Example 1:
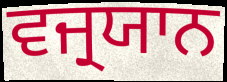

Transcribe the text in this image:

ਵਜ੍ਰਯਾਨ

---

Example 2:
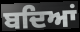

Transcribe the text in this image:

ਬਦਿਆਂ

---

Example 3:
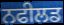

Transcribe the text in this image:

ਨਫੀਲਡ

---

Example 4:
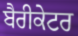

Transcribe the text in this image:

ਬੈਰੀਕੇਟਰ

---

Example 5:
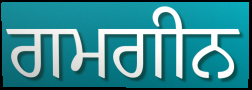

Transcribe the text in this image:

ਗਮਗੀਨ